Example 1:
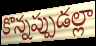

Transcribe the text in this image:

కొన్నప్పుడల్లా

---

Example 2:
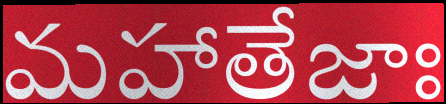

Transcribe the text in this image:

మహాతేజాః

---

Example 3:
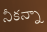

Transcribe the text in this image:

నీకన్నా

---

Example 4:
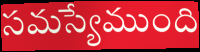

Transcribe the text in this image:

సమస్యేముంది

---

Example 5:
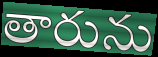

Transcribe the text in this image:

తారును